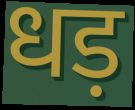
धड़